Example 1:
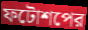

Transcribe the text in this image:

ফটোশপের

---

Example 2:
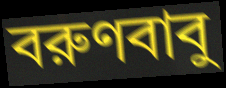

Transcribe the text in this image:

বরুণবাবু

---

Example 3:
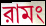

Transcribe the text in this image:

রামং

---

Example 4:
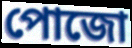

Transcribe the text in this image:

পোজো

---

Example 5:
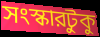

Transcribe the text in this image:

সংস্কারটুকু